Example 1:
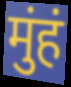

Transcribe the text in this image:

मुंहं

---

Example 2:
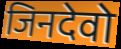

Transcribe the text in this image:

जिनदेवो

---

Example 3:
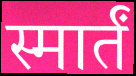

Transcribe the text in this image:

स्मार्तं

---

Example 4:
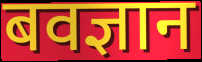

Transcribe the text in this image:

बवज्ञान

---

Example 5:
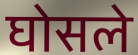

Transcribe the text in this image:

घोसले